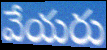
వేయరు